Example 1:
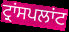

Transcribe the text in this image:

ਟ੍ਰਾਂਸਪਲਾਂਟ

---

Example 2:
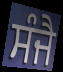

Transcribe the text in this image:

ਸੰਜੈ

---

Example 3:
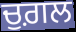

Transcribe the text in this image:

ਚੁਗ਼ਲ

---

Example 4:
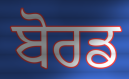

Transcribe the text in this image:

ਬੋਰਡ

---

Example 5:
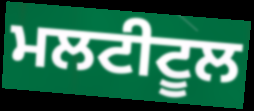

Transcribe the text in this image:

ਮਲਟੀਟੂਲ